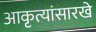
आकृत्यांसारखे